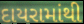
દાયરામાંથી